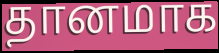
தானமாக